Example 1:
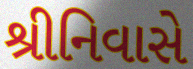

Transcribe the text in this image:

શ્રીનિવાસે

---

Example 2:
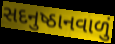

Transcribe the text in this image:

સદનુષ્ઠાનવાળું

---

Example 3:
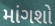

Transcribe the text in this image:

માંગશો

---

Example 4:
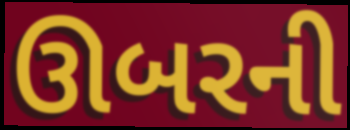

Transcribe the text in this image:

ઊબરની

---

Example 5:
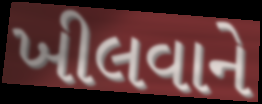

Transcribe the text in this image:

ખીલવાને